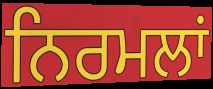
ਨਿਰਮਲਾਂ